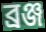
ব্ৰঞ্জ